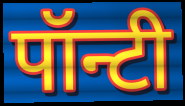
पॉन्टी